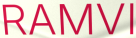
RAMVI